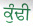
ਕੁੰਢੀ